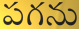
పగను